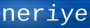
neriye